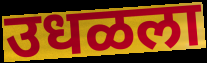
उधळला